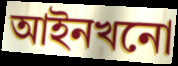
আইনখনো